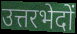
उत्तरभेदों